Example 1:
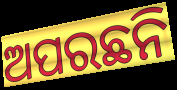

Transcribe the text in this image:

ଅପରଛନି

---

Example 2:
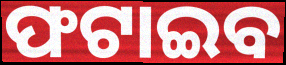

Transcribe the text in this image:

ଫଟାଇବ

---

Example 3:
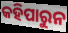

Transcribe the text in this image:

କହିପାରୁନ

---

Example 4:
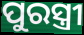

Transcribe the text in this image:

ପୁରସ୍ତ୍ରୀ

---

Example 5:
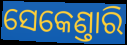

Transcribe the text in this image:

ସେକେଣ୍ତାରି